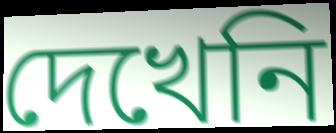
দেখেনি